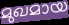
മുഖമായ